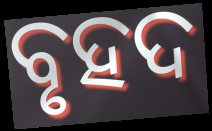
ବୃହଦ